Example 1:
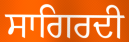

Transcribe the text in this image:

ਸਾਗਿਰਦੀ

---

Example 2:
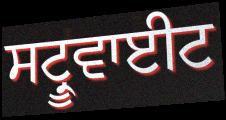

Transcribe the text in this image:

ਸਟ੍ਰੂਵਾਈਟ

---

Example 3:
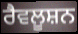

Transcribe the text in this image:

ਰੈਵਲੂਸ਼ਨ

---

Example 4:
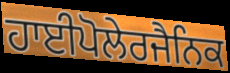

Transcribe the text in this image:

ਹਾਈਪੋਲੇਰਜੈਨਿਕ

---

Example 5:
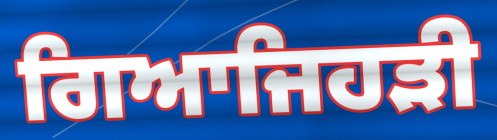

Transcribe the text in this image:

ਗਿਆਜਿਹੜੀ